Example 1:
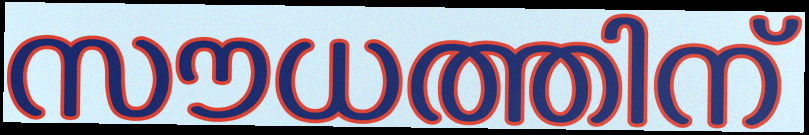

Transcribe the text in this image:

സൗധത്തിന്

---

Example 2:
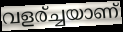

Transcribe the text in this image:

വളര്ച്ചയാണ്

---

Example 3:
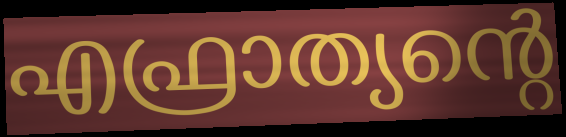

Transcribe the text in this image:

എഫ്രാത്യന്റെ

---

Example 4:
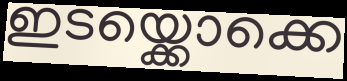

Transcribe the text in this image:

ഇടയ്ക്കൊക്കെ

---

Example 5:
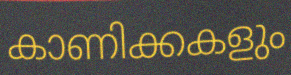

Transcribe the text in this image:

കാണിക്കകളും